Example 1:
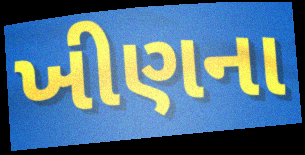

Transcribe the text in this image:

ખીણના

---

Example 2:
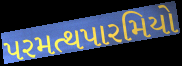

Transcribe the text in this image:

પરમત્થપારમિયો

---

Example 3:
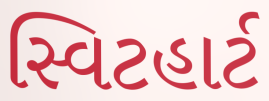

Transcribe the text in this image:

સ્વિટહાર્ટ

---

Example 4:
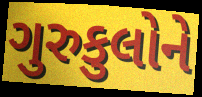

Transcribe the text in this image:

ગુરુકુલોને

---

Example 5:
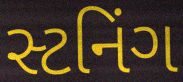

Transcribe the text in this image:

સ્ટનિંગ